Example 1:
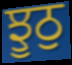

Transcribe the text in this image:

ਝੂਠੁ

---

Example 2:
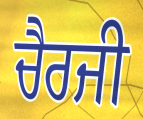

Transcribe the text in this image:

ਚੈਰਜੀ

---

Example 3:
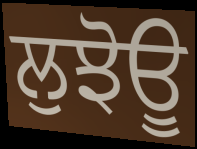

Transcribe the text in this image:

ਲੁਝੋਊ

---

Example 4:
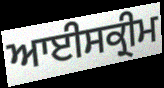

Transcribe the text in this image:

ਆਈਸਕ੍ਰੀਮ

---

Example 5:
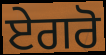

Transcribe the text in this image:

ਏਗਰੋ